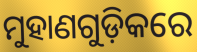
ମୁହାଣଗୁଡ଼ିକରେ